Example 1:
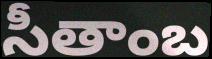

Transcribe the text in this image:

సీతాంబ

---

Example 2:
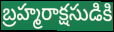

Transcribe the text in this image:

బ్రహ్మరాక్షసుడికి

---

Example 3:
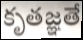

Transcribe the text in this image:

కృతజ్ఞతే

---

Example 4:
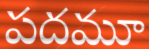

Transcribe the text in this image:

పదమూ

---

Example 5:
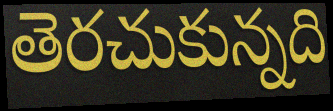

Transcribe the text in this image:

తెరచుకున్నది